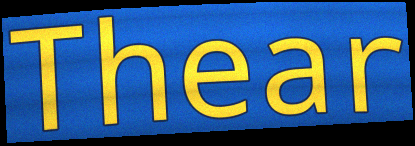
Thear